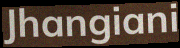
Jhangiani